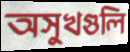
অসুখগুলি